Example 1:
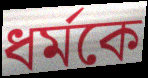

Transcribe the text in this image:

ধর্মকে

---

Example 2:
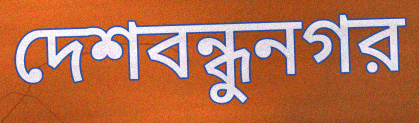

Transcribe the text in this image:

দেশবন্ধুনগর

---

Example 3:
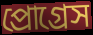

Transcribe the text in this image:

প্রোগ্রেস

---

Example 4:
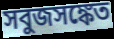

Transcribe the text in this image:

সবুজসঙ্কেত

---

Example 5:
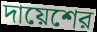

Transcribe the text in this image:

দায়েশের